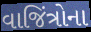
વાજિંત્રોના